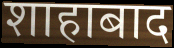
शाहाबाद